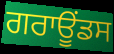
ਗਰਾਊਂਡਸ